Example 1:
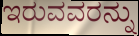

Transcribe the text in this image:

ಇರುವವರನ್ನು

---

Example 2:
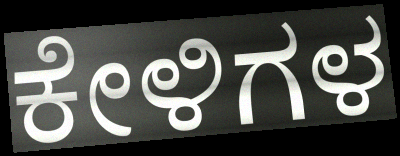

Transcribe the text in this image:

ಕೇಳಿಗಳ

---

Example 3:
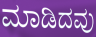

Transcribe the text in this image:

ಮಾಡಿದವು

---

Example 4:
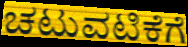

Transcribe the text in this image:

ಚಟುವಟಿಕೆಗೆ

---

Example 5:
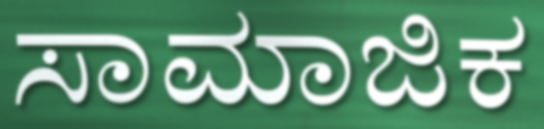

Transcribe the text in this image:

ಸಾಮಾಜಿಕ